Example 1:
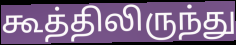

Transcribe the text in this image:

கூத்திலிருந்து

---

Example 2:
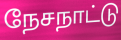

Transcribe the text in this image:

நேசநாட்டு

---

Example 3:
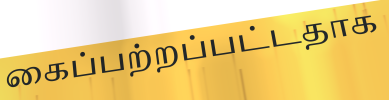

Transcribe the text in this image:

கைப்பற்றப்பட்டதாக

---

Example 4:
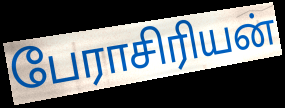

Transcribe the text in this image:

பேராசிரியன்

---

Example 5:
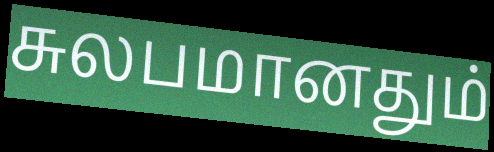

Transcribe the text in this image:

சுலபமானதும்